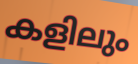
കളിലും